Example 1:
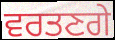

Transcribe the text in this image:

ਵਰਤਣਗੇ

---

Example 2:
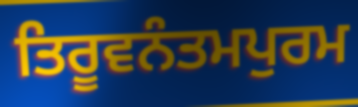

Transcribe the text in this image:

ਤਿਰੂਵਨੰਤਮਪੁਰਮ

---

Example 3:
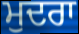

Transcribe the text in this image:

ਮੁਦਰਾ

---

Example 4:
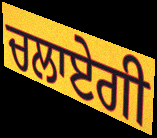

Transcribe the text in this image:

ਚਲਾਏਗੀ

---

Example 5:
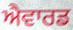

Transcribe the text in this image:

ਐਵਾਰਡ